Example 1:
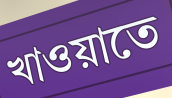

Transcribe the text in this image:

খাওয়াতে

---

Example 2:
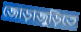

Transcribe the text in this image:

জোড়াজুড়িতে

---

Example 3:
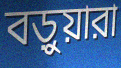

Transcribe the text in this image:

বড়ুয়ারা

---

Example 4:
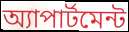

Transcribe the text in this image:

অ্যাপার্টমেন্ট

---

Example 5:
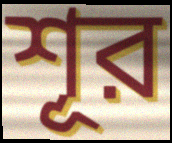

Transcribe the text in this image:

শূর